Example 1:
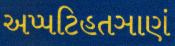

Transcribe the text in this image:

અપ્પટિહતઞાણં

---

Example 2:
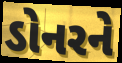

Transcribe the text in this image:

ડોનરને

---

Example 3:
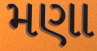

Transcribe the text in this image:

મણા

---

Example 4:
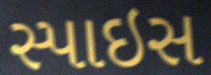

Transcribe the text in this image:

સ્પાઇસ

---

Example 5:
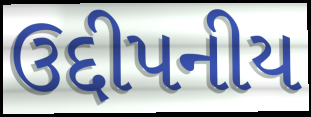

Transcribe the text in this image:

ઉદ્દીપનીય